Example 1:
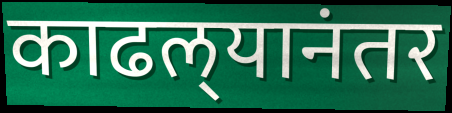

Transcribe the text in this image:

काढल्यानंतर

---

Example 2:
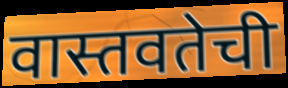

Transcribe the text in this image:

वास्तवतेची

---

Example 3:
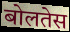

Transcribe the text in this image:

बोलतेस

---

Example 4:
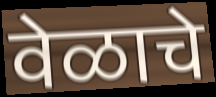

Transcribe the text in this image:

वेळाचे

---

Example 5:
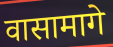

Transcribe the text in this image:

वासामागे